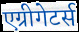
एग्रीगेटर्स